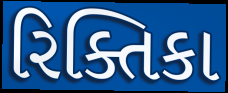
રિક્તિકા